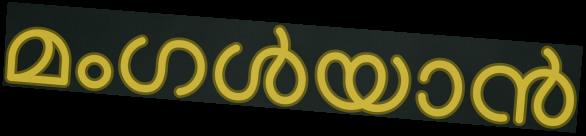
മംഗൾയാൻ